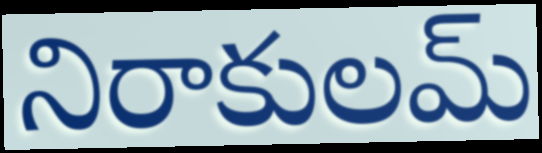
నిరాకులమ్